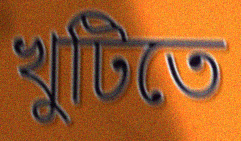
খুটিতে